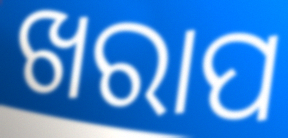
ଖରାପ